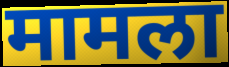
मामला